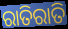
ରାତିରାତି